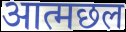
आत्मछल